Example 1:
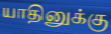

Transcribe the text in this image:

யாதினுக்கு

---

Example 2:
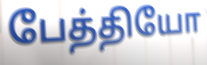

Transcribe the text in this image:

பேத்தியோ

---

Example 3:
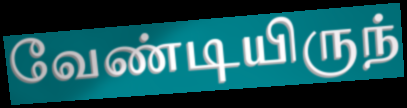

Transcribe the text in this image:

வேண்டியிருந்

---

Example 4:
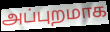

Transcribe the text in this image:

அப்புறமாக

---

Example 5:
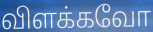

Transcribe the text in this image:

விளக்கவோ